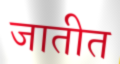
जातीत